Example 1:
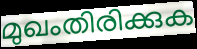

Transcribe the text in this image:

മുഖംതിരിക്കുക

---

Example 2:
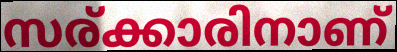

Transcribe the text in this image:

സര്ക്കാരിനാണ്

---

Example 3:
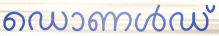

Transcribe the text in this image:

ഡൊണൾഡ്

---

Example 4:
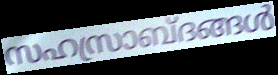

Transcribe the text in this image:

സഹസ്രാബ്ദങ്ങൾ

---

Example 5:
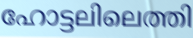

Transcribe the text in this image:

ഹോട്ടലിലെത്തി